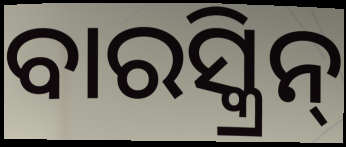
ବାରସ୍କ୍ରିନ୍